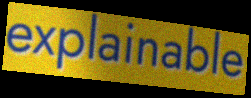
explainable